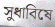
সুধাবিষে